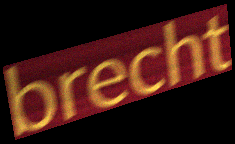
brecht